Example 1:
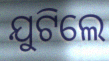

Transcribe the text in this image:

ଯୁଟିଲେ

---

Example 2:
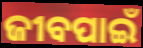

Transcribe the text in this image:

ଜୀବପାଇଁ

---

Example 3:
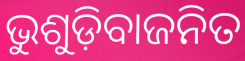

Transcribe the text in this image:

ଭୁଶୁଡ଼ିବାଜନିତ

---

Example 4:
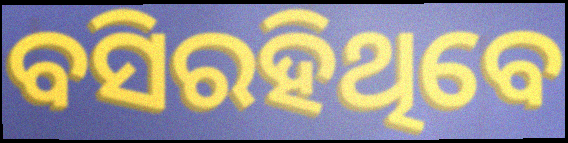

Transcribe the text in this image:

ବସିରହିଥିବେ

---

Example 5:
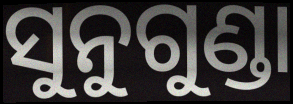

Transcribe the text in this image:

ସୁନୁଗୁଣ୍ଡା